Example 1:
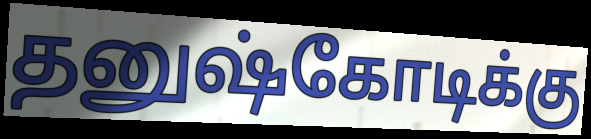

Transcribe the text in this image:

தனுஷ்கோடிக்கு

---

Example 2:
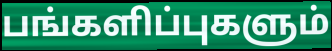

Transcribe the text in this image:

பங்களிப்புகளும்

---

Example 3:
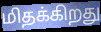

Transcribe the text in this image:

மிதக்கிறது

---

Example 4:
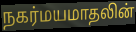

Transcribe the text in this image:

நகர்மயமாதலின்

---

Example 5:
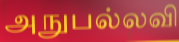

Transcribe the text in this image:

அநுபல்லவி